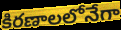
కిరణాలలోనేగా